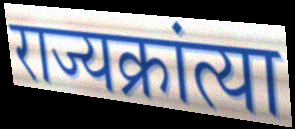
राज्यक्रांत्या